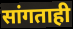
सांगताही